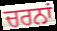
ਚਰਨਾਂ